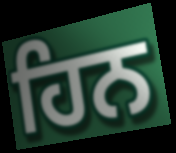
ਹਿਨ